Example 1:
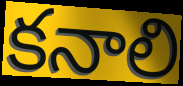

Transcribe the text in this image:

కనాలి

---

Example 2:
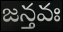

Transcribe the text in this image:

జన్తవః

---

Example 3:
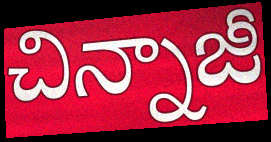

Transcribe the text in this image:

చిన్నాజీ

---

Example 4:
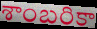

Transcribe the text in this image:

శాంబరికా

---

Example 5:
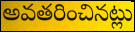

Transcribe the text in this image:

అవతరించినట్లు